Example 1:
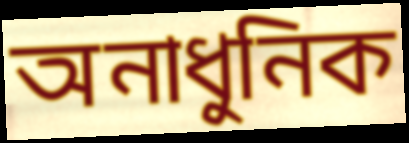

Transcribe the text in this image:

অনাধুনিক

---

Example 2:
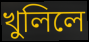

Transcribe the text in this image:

খুলিলে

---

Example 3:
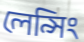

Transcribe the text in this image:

লেন্সিং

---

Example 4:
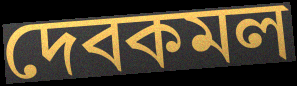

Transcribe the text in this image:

দেবকমল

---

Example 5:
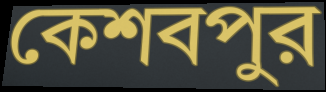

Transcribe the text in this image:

কেশবপুর